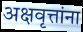
अक्षवृत्तांना